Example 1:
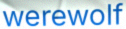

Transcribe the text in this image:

werewolf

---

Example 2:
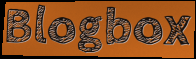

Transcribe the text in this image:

Blogbox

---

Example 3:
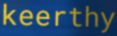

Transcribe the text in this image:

keerthy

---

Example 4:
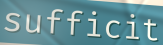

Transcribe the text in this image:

sufficit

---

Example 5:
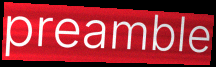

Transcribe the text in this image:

preamble